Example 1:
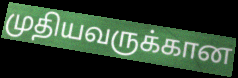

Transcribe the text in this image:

முதியவருக்கான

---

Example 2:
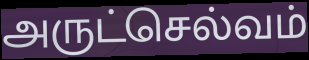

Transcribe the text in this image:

அருட்செல்வம்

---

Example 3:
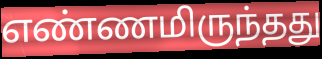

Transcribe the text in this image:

எண்ணமிருந்தது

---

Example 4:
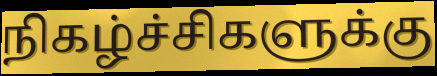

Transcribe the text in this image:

நிகழ்ச்சிகளுக்கு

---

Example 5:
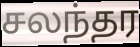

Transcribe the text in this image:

சலந்தர